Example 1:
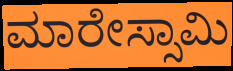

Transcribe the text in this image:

ಮಾರೇಸ್ಸಾಮಿ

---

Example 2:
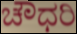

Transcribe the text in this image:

ಚೌಧರಿ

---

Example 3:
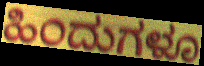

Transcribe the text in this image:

ಹಿಂದುಗಳೂ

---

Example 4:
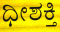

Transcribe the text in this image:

ಧೀಶಕ್ತಿ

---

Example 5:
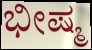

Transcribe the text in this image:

ಭೀಷ್ಮ